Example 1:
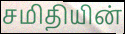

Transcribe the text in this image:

சமிதியின்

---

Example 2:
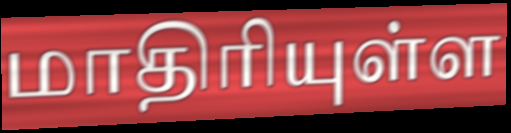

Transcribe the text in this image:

மாதிரியுள்ள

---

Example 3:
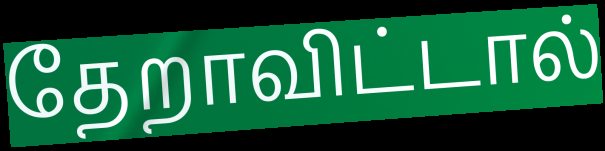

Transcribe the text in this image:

தேறாவிட்டால்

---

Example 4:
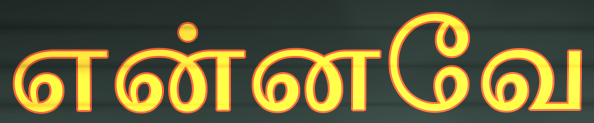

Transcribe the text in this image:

என்னவே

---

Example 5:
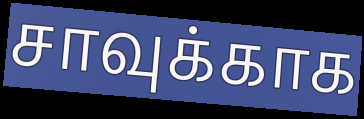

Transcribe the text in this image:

சாவுக்காக